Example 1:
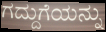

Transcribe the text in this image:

ಗದ್ದುಗೆಯನ್ನು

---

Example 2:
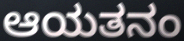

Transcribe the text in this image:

ಆಯತನಂ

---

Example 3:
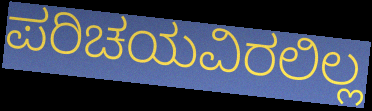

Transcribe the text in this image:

ಪರಿಚಯವಿರಲಿಲ್ಲ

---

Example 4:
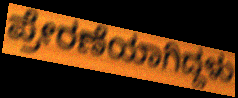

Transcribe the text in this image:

ಪ್ರೇರಣೆಯಾಗಿದ್ದಳು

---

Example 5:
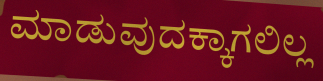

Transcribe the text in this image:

ಮಾಡುವುದಕ್ಕಾಗಲಿಲ್ಲ